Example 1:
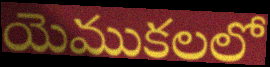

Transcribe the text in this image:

యెముకలలో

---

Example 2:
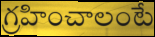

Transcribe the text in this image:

గ్రహించాలంటే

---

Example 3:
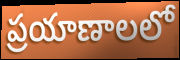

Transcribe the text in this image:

ప్రయాణాలలో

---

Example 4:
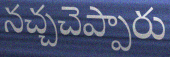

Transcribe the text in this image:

నచ్చచెప్పారు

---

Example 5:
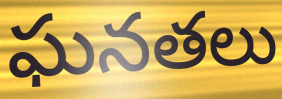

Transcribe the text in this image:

ఘనతలు